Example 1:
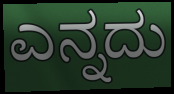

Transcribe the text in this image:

ಎನ್ನದು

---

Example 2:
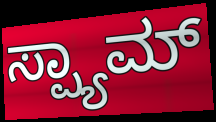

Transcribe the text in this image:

ಸ್ಪ್ಯಾಮ್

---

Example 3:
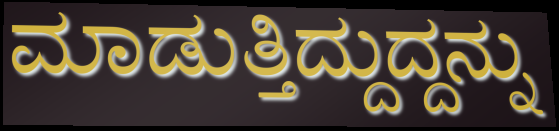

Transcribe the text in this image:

ಮಾಡುತ್ತಿದ್ದುದ್ದನ್ನು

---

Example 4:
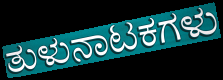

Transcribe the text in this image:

ತುಳುನಾಟಕಗಳು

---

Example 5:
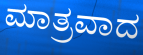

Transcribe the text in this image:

ಮಾತ್ರವಾದ